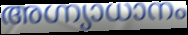
അഗ്ന്യാധാനം